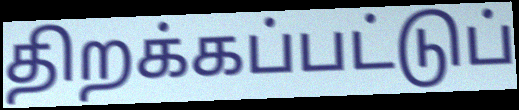
திறக்கப்பட்டுப்